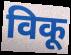
विकू